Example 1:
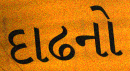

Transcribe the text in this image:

દાઢનો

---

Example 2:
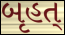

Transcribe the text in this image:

બૃહત્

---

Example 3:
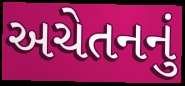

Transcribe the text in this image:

અચેતનનું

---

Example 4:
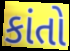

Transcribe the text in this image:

કાંતો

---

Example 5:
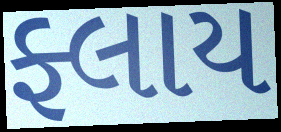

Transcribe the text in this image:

ફ્લાય